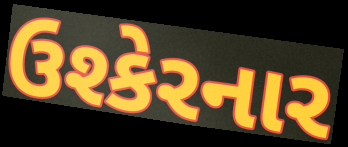
ઉશ્કેરનાર